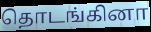
தொடங்கினா